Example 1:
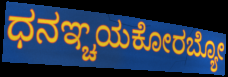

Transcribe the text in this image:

ಧನಞ್ಚಯಕೋರಬ್ಯೋ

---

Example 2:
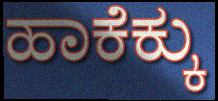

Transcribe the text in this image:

ಹಾಕೆಕ್ಕು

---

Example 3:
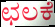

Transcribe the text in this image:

ಛಲಕೆ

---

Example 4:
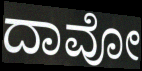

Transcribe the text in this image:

ದಾವೋ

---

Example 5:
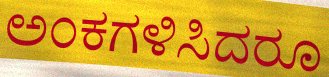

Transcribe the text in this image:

ಅಂಕಗಳಿಸಿದರೂ